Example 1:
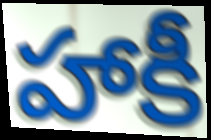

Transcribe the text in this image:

హాకీ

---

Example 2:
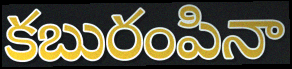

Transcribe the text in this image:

కబురంపినా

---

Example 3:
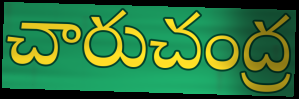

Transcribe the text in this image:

చారుచంద్ర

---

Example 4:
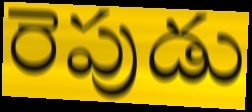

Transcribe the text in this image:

రెపుడు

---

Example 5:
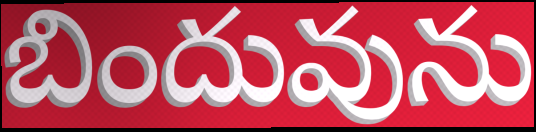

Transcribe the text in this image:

బిందువును